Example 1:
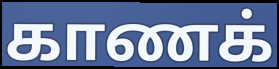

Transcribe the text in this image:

காணக்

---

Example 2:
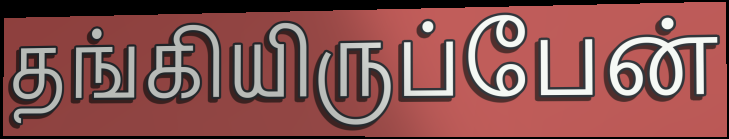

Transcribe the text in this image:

தங்கியிருப்பேன்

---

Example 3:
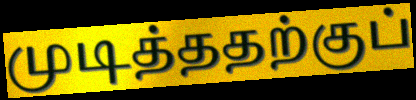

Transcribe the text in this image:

முடித்ததற்குப்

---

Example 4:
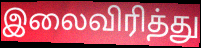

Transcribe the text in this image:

இலைவிரித்து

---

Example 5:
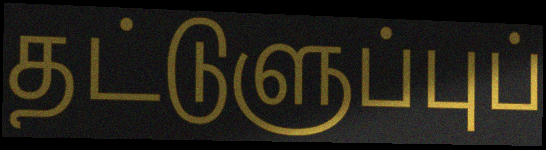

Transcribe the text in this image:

தட்டுளுப்புப்